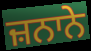
ਜ਼ਨਾਨੇ